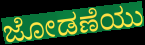
ಜೋಡಣೆಯು